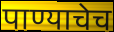
पाण्याचेच